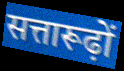
सत्तारूढ़ों